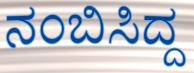
ನಂಬಿಸಿದ್ದ